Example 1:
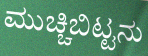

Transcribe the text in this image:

ಮುಚ್ಚಿಬಿಟ್ಟನು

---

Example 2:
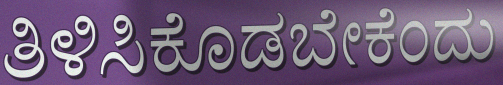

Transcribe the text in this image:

ತಿಳಿಸಿಕೊಡಬೇಕೆಂದು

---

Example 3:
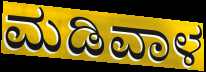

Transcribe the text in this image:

ಮಡಿವಾಳ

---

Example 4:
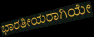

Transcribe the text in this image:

ಭಾರತೀಯರಾಗಿಯೇ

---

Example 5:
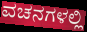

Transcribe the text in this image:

ವಚನಗಳಲ್ಲಿ